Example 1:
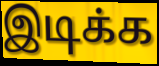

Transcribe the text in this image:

இடிக்க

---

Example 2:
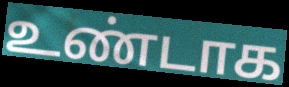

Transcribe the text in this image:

உண்டாக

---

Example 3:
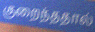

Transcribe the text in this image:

குறைந்ததால்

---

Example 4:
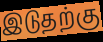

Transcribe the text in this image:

இடுதற்கு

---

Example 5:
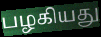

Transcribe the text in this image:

பழகியது